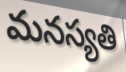
మనస్యతి